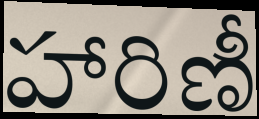
హారిణీ